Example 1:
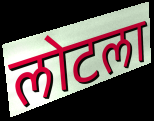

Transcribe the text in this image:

लोटला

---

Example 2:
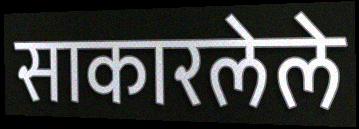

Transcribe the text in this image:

साकारलेले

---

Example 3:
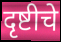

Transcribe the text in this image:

दृष्टीचे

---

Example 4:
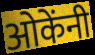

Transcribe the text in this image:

ओकेंनी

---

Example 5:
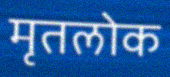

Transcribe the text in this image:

मृतलोक